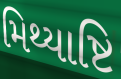
મિથ્યાષ્ટિ